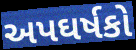
અપઘર્ષકો